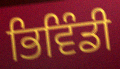
ਭਿਵਿੰਡੀ